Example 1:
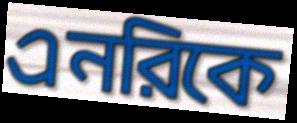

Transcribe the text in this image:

এনরিকে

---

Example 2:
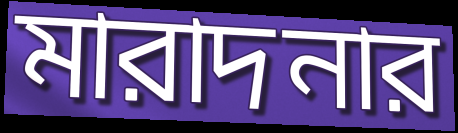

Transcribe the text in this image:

মারাদনার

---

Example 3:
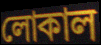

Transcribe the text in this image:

লোকাল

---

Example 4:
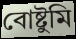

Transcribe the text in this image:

বোষ্টুমি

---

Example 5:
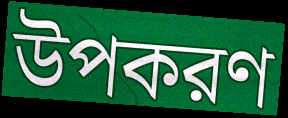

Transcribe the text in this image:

উপকরণ